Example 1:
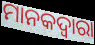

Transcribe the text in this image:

ମାନକଦ୍ୱାରା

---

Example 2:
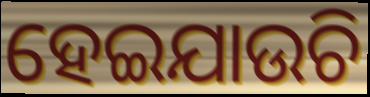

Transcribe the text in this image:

ହେଇଯାଉଚି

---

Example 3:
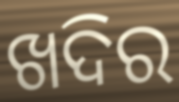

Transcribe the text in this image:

ଖଦିର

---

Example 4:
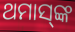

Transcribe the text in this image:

ଥମାସ୍‌ଙ୍କ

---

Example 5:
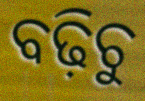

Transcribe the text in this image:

ବଢ଼ିଚୁ